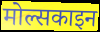
मोल्सकाइन